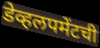
डेव्हलपमेंटची